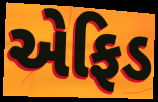
એફિડ